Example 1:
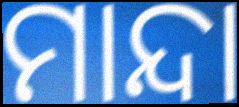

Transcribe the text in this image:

ମାନ୍ଦା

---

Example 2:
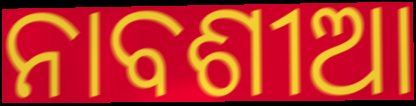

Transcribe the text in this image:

ନାବଶୀଆ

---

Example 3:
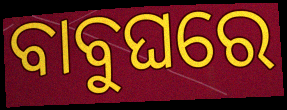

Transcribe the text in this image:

ବାବୁଘରେ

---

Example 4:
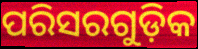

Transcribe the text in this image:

ପରିସରଗୁଡ଼ିକ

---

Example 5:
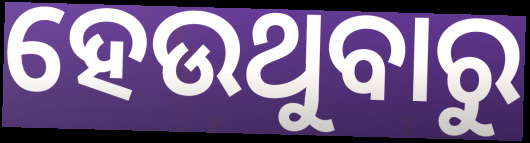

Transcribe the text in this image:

ହେଉଥୁବାରୁ